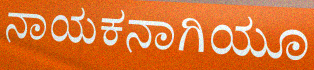
ನಾಯಕನಾಗಿಯೂ